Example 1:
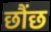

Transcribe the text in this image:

छौंछ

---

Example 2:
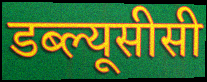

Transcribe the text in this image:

डब्ल्यूसीसी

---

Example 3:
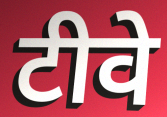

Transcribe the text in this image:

टीवे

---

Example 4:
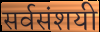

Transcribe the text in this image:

सर्वसंशयी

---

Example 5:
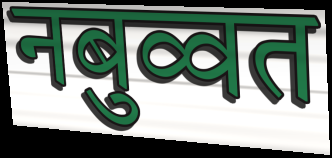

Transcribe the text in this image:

नबुव्वत